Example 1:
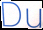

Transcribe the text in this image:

Du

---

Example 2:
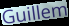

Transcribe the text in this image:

Guillem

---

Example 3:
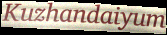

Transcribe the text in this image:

Kuzhandaiyum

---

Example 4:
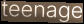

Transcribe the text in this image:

teenage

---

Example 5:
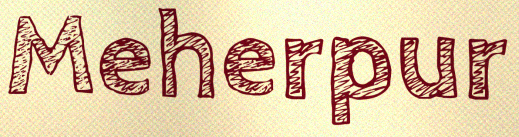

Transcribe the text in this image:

Meherpur